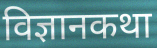
विज्ञानकथा